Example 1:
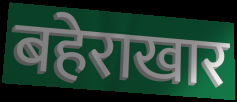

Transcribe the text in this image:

बहेराखार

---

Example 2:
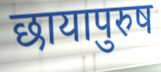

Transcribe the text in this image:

छायापुरुष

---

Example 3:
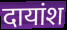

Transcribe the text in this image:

दायांश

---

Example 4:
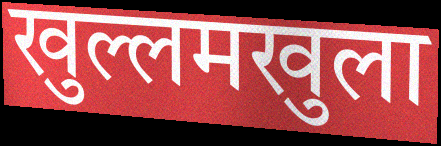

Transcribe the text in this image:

खुल्लमखुला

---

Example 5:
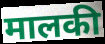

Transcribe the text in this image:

मालकी